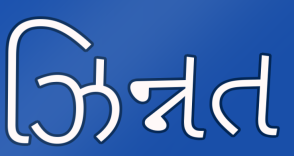
ઝિન્નત